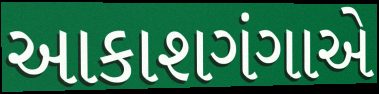
આકાશગંગાએ